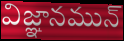
విజ్ఞానమున్